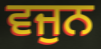
ਵਜੁਨ